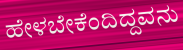
ಹೇಳಬೇಕೆಂದಿದ್ದವನು